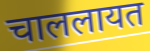
चाललायत